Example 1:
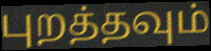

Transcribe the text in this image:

புறத்தவும்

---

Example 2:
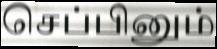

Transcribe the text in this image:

செப்பினும்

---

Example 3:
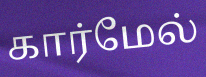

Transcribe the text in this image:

கார்மேல்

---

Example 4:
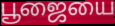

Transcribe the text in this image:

பூஜையை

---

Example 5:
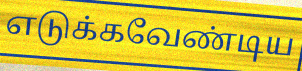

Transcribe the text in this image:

எடுக்கவேண்டிய